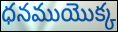
ధనముయొక్క